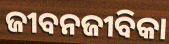
ଜୀବନଜୀବିକା